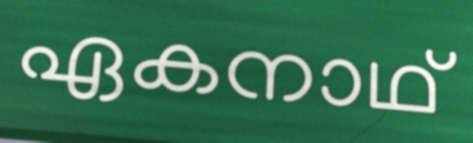
ഏകനാഥ്